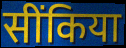
सींकिया